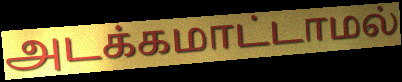
அடக்கமாட்டாமல்